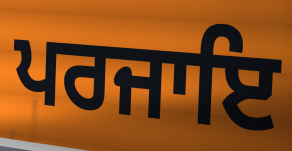
ਪਰਜਾਇ